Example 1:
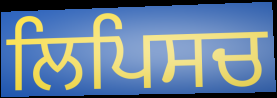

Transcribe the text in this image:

ਲਿਪਿਸਚ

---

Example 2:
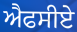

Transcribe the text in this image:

ਐਫਸੀਏ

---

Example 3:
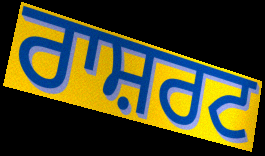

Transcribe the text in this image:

ਰਾਸ਼ਰਟ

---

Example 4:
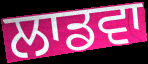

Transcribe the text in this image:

ਲਾਡਵਾ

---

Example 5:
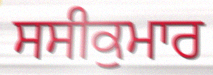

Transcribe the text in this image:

ਸਸੀਕੁਮਾਰ